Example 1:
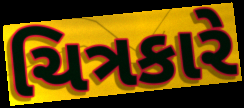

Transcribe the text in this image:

ચિત્રકારે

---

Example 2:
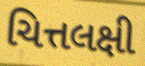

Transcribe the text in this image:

ચિત્તલક્ષી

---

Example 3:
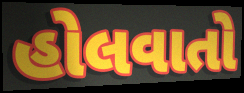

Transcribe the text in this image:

હોલવાતો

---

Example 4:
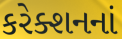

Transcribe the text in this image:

કરેક્શનનાં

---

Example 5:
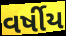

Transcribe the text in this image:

વર્ષીય